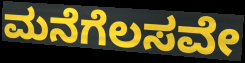
ಮನೆಗೆಲಸವೇ